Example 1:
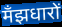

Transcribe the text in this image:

मँझधारों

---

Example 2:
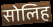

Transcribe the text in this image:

सोलिह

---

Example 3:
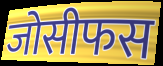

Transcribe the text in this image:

जोसीफस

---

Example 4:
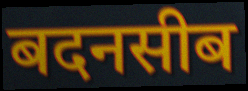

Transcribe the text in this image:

बदनसीब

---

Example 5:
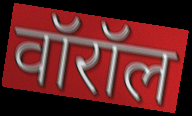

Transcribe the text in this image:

वॉरॉल